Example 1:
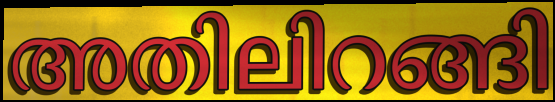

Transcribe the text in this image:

അതിലിറങ്ങി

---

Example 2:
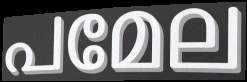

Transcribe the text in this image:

പമേല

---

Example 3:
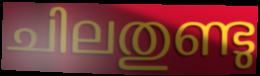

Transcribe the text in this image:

ചിലതുണ്ടു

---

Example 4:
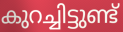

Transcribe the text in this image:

കുറച്ചിട്ടുണ്ട്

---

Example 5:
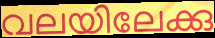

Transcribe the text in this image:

വലയിലേക്കു